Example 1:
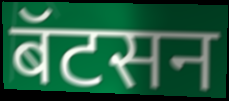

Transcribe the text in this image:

बॅटसन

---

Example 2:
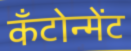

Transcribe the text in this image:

कँटोन्मेंट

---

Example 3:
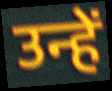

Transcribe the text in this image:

उन्हें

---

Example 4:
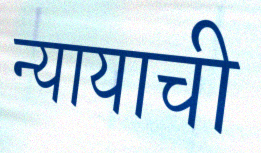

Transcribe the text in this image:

न्यायाची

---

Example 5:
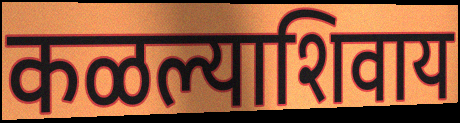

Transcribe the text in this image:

कळल्याशिवाय